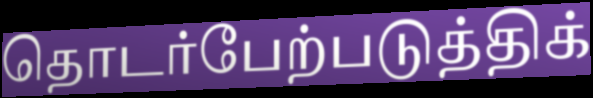
தொடர்பேற்படுத்திக்